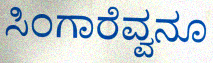
ಸಿಂಗಾರೆವ್ವನೂ